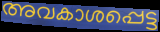
അവകാശപ്പെട്ട